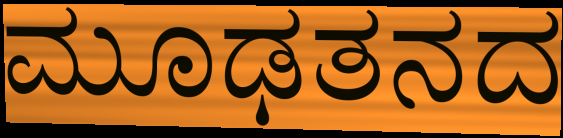
ಮೂಢತನದ